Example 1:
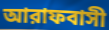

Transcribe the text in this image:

আরাফবাসী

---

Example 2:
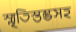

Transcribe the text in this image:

স্মৃতিস্তম্ভসহ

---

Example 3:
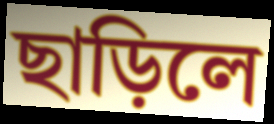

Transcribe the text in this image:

ছাড়িলে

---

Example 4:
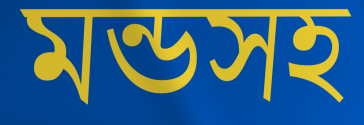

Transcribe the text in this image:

মন্ডসহ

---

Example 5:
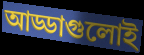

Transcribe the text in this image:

আড্ডাগুলোই